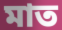
মাত